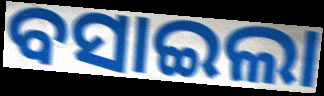
ବସାଇଲା